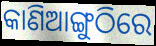
କାଣିଆଙ୍ଗୁଠିରେ